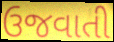
ઉજવાતી